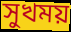
সুখময়